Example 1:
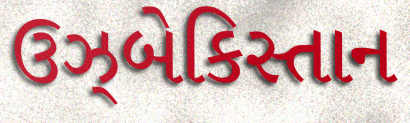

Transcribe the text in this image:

ઉઝ્બેકિસ્તાન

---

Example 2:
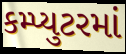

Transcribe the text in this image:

કમ્પ્યુટરમાં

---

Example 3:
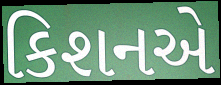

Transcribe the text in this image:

કિશનએ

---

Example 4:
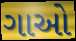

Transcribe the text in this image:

ગાઓ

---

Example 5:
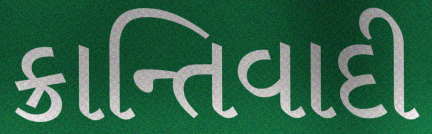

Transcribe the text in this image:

ક્રાન્તિવાદી